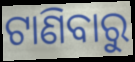
ଟାଣିବାରୁ